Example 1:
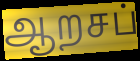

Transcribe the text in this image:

ஆறசப்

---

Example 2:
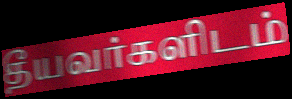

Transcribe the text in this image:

தீயவர்களிடம்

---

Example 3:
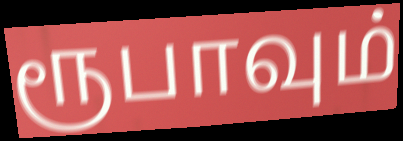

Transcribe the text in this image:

ரூபாவும்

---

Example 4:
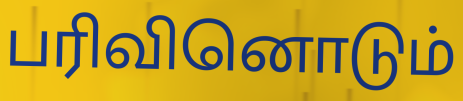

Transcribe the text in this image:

பரிவினொடும்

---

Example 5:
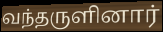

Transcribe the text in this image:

வந்தருளினார்